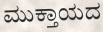
ಮುಕ್ತಾಯದ